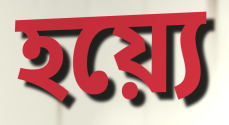
হয়্যে